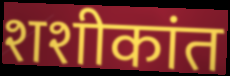
शशीकांत